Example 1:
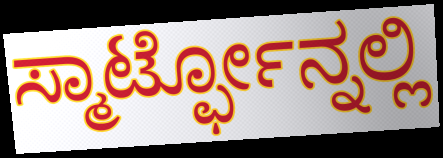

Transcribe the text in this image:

ಸ್ಮಾರ್ಟ್ಫೋನ್ನಲ್ಲಿ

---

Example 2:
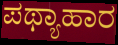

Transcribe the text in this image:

ಪಥ್ಯಾಹಾರ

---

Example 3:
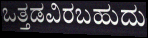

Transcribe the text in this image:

ಒತ್ತಡವಿರಬಹುದು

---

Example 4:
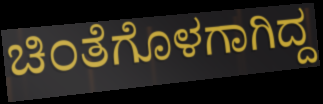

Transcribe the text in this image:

ಚಿಂತೆಗೊಳಗಾಗಿದ್ದ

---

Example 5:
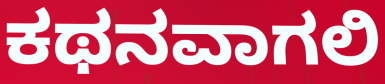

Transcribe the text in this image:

ಕಥನವಾಗಲಿ